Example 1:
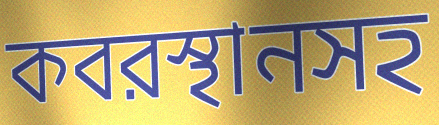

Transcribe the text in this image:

কবরস্থানসহ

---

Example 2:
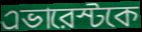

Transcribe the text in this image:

এভারেস্টকে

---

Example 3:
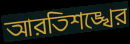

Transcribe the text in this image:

আরতিশঙ্খের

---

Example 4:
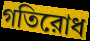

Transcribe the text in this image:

গতিরোধ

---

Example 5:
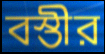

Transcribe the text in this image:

বস্তীর